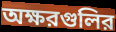
অক্ষরগুলির